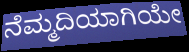
ನೆಮ್ಮದಿಯಾಗಿಯೇ